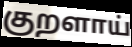
குறளாய்